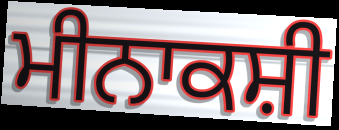
ਮੀਨਾਕਸ਼ੀ